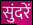
सुंदरें